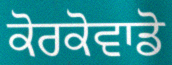
ਕੋਰਕੋਵਾਡੋ